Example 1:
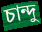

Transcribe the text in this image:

চান্দু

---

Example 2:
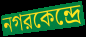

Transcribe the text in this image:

নগরকেন্দ্রে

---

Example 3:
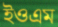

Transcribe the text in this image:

ইওএম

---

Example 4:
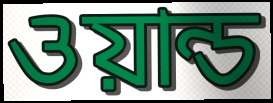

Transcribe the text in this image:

ওয়ান্ড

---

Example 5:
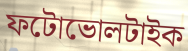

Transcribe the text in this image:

ফটোভোলটাইক